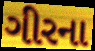
ગીરના